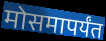
मोसमापर्यंत